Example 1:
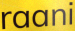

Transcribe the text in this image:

raani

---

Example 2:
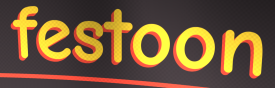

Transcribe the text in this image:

festoon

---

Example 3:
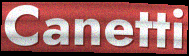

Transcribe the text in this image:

Canetti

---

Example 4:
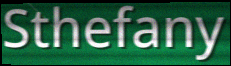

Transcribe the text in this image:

Sthefany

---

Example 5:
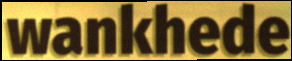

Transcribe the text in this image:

wankhede